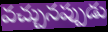
వచ్చునప్పుడు